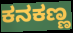
ಕನಕಣ್ಣ